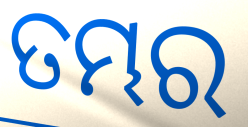
ତମ୍ଭର